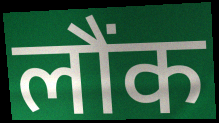
लौंक